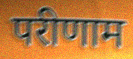
परीणाम